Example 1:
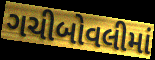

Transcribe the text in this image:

ગચીબોવલીમાં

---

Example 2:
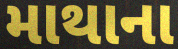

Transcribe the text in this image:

માથાના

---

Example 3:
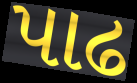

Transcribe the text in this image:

પાઢ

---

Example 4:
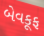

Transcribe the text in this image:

બેવકૂફ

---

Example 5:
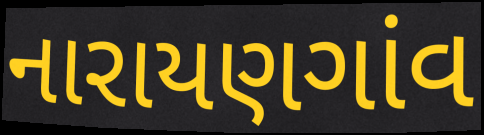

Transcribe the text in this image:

નારાયણગાંવ